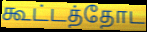
கூட்டத்தோட